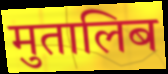
मुतालिब